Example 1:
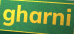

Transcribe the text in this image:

gharni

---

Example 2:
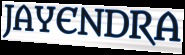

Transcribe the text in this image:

JAYENDRA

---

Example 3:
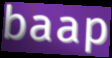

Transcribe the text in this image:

baap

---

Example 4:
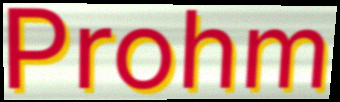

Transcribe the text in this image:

Prohm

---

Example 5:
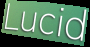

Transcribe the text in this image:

Lucid